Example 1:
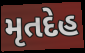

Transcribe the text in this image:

મૃતદેહ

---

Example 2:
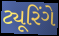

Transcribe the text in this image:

ટ્યૂરિંગે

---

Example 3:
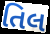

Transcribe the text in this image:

તિલ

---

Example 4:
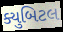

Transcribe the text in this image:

ક્યુબિટલ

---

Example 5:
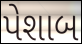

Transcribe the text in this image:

પેશાબ